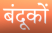
बंदूकों